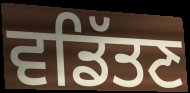
ਵਡਿੱਤਣ